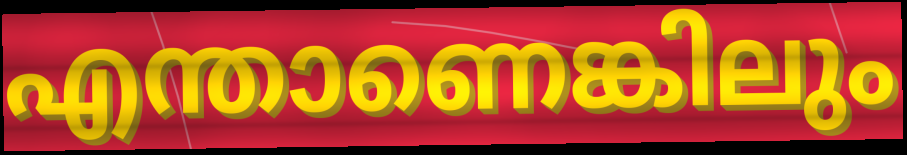
എന്താണെങ്കിലും